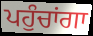
ਪਹੁੰਚਾਂਗਾ